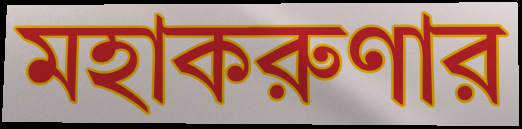
মহাকরুণার